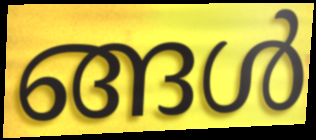
ങ്ങൾ